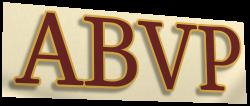
ABVP